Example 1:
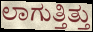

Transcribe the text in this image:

ಲಾಗುತ್ತಿತ್ತು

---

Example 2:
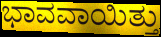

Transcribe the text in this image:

ಭಾವವಾಯಿತ್ತು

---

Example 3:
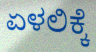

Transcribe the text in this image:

ಏಳಲಿಕ್ಕೆ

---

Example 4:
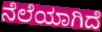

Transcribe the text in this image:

ನೆಲೆಯಾಗಿದೆ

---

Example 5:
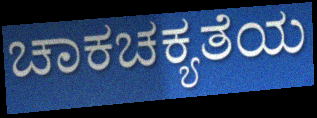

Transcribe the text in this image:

ಚಾಕಚಕ್ಯತೆಯ